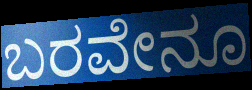
ಬರವೇನೂ